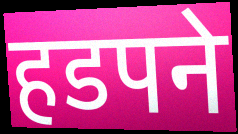
हडपने